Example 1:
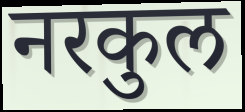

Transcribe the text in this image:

नरकुल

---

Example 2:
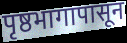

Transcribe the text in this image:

पृष्ठभागापासून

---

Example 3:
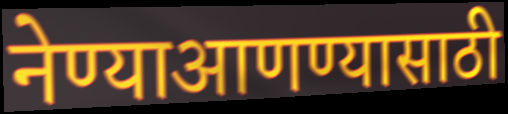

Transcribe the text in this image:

नेण्याआणण्यासाठी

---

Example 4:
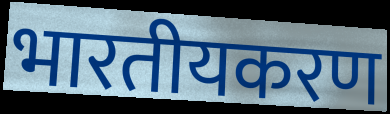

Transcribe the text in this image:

भारतीयकरण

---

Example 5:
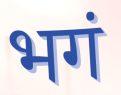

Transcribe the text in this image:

भगं